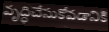
వృద్ధిచేసుకోవడానికి